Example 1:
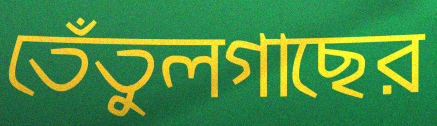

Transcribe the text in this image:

তেঁতুলগাছের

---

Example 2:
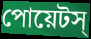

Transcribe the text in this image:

পোয়েটস্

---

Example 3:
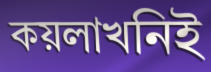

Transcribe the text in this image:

কয়লাখনিই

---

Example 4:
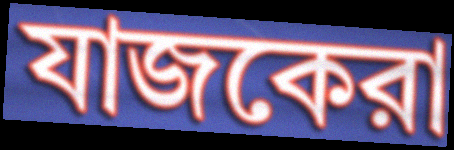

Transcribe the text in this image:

যাজকেরা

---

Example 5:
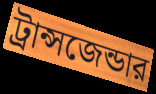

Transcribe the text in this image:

ট্রান্সজেন্ডার